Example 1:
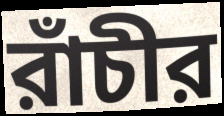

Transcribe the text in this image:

রাঁচীর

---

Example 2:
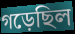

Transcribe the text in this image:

গড়েছিল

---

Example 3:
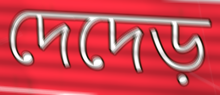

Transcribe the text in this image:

দেদেড়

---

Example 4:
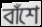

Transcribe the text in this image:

বাঁশে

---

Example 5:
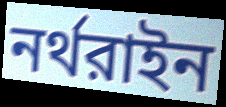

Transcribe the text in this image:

নর্থরাইন